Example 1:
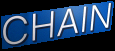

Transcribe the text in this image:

CHAIN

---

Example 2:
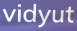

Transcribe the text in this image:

vidyut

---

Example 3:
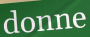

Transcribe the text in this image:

donne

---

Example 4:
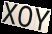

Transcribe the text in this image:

XOY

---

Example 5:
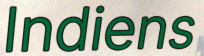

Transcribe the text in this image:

Indiens